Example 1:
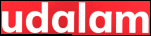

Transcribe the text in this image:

udalam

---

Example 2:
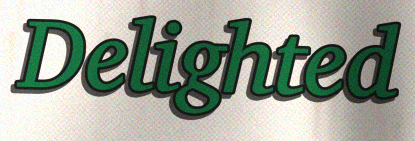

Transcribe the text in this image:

Delighted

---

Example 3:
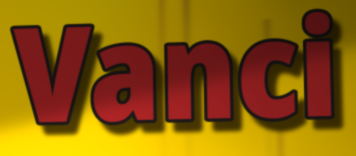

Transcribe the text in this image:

Vanci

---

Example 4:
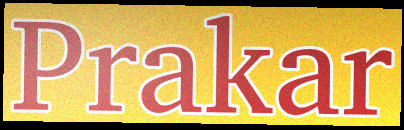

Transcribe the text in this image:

Prakar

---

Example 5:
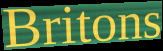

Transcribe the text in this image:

Britons